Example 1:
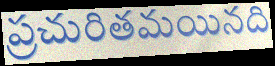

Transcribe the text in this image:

ప్రచురితమయినది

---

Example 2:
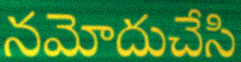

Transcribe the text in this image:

నమోదుచేసి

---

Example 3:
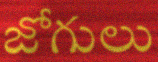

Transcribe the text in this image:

జోగులు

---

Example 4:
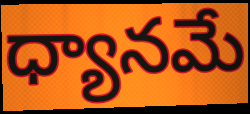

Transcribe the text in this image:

ధ్యానమే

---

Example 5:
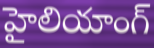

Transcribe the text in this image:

హైలియాంగ్